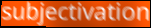
subjectivation